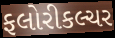
ફલોરીકલ્ચર